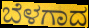
ಬೆಳಗಾದ